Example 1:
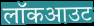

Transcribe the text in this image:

लॉकआउट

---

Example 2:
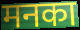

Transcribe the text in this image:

मनका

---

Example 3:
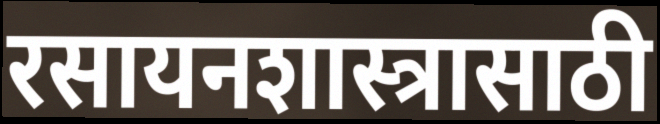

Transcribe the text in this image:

रसायनशास्त्रासाठी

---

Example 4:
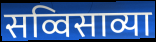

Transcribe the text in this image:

सव्विसाव्या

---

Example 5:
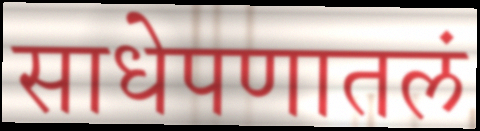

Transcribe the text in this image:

साधेपणातलं